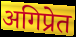
अगिप्रेत